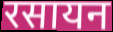
रसायन